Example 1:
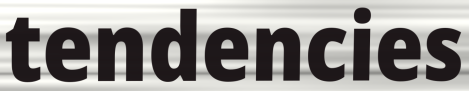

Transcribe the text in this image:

tendencies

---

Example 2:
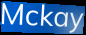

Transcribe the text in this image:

Mckay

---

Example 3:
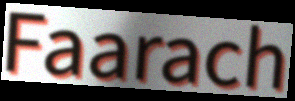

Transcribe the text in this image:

Faarach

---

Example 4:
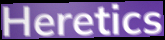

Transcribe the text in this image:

Heretics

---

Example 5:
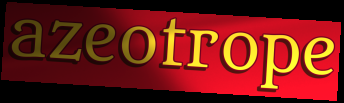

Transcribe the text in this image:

azeotrope